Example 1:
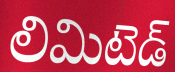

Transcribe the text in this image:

లిమిటెడ్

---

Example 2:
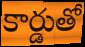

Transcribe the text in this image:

కార్డుతో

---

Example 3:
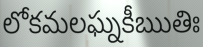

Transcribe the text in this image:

లోకమలఘ్నకీఋతిః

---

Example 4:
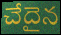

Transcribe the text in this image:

చేదైన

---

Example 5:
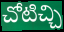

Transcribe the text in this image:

చోటిచ్చి